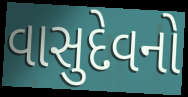
વાસુદેવનો